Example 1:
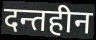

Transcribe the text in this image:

दन्तहीन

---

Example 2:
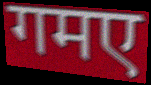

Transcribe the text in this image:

गमए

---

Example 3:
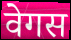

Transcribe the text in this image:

वेगस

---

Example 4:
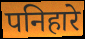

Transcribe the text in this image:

पनिहारे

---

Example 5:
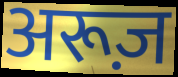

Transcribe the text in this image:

अरूज़